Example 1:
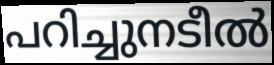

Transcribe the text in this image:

പറിച്ചുനടീൽ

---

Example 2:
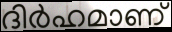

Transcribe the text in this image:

ദിർഹമാണ്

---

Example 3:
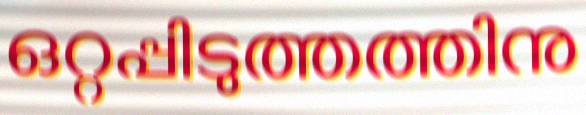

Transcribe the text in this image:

ഒറ്റപ്പിടുത്തത്തിനു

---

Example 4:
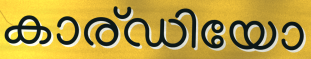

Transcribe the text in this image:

കാര്ഡിയോ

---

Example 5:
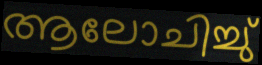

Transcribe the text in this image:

ആലോചിച്ചു്